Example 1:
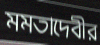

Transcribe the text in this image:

মমতাদেবীর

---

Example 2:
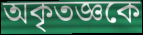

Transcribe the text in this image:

অকৃতজ্ঞকে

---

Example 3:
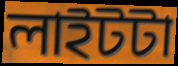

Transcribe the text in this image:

লাইটটা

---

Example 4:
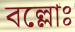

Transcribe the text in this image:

বল্লোঃ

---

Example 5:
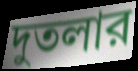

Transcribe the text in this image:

দুতলার